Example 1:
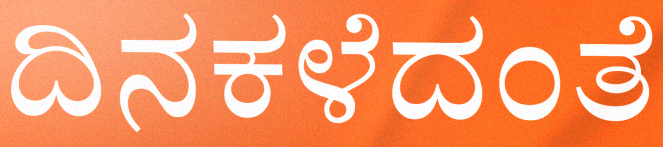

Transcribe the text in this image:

ದಿನಕಳೆದಂತೆ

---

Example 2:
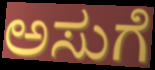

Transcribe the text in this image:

ಅಸುಗೆ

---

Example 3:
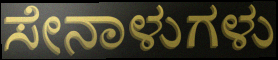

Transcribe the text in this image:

ಸೇನಾಳುಗಳು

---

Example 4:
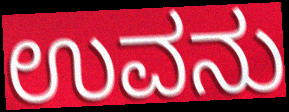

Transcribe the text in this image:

ಉವನು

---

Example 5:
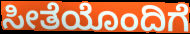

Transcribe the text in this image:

ಸೀತೆಯೊಂದಿಗೆ